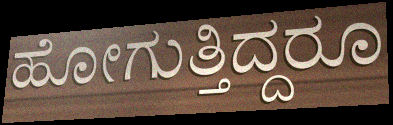
ಹೋಗುತ್ತಿದ್ದರೂ